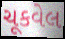
ચૂકવેલ